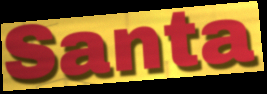
Santa